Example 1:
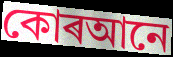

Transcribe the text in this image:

কোৰআনে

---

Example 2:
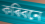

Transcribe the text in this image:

কৰিবনে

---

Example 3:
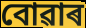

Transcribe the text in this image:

বোৱাৰ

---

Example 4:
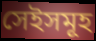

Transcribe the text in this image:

সেইসমূহ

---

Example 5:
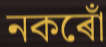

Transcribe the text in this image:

নকৰোঁ